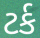
ટર્ક